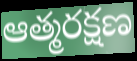
ఆత్మరక్షణ